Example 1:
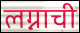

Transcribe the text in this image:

लग्नाची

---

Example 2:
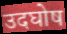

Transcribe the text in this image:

उदघोष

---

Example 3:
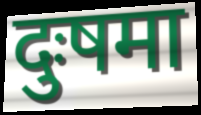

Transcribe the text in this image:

दुःषमा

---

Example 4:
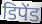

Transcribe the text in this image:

डिपेंड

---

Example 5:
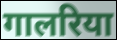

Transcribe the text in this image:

गालरिया